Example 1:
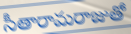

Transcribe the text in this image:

సీతారామరాజుతో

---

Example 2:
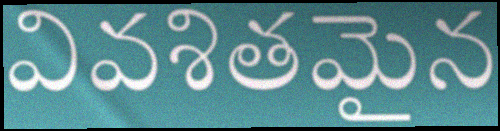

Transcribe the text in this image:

వివశితమైన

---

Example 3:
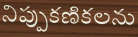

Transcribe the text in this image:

నిప్పుకణికలను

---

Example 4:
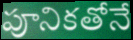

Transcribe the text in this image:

పూనికతోనే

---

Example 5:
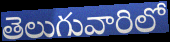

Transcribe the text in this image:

తెలుగువారిలో